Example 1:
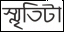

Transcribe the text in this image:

স্মৃতিটা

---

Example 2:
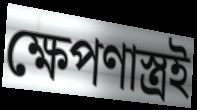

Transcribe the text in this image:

ক্ষেপণাস্ত্রই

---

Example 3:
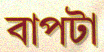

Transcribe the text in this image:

বাপটা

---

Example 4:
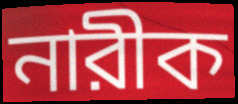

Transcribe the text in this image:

নারীক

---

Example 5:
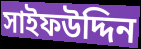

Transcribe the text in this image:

সাইফউদ্দিন